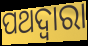
ପଥଦ୍ଵାରା